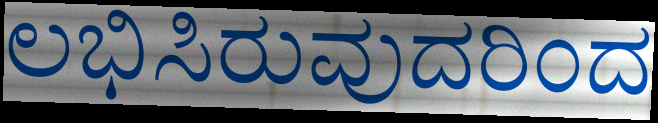
ಲಭಿಸಿರುವುದರಿಂದ